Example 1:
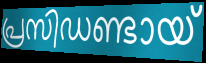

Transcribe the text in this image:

പ്രസിഡണ്ടായ്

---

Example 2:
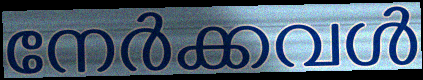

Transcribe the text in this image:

നേർക്കവൾ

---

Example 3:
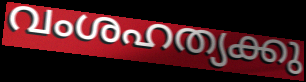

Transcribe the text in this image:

വംശഹത്യക്കു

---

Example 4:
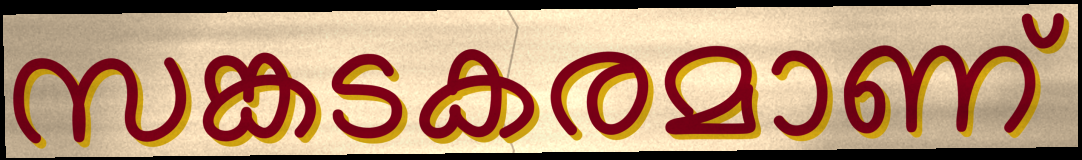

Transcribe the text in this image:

സങ്കടകരമാണ്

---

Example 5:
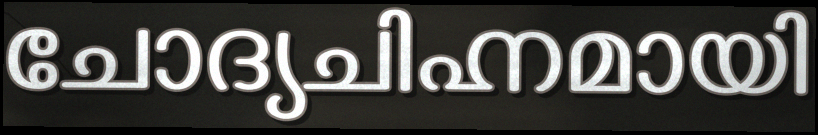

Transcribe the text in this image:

ചോദ്യചിഹ്നമായി